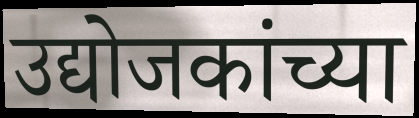
उद्योजकांच्या